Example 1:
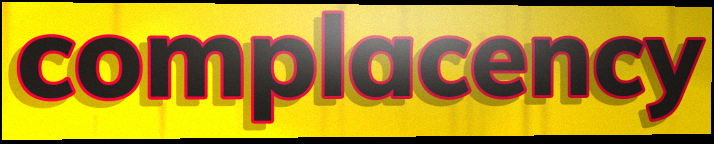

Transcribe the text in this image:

complacency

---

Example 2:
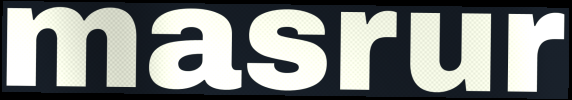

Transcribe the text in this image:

masrur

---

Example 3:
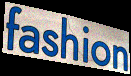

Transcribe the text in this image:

fashion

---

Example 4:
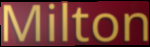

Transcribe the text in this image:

Milton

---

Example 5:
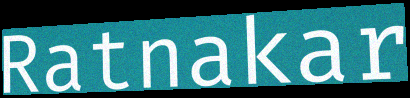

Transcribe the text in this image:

Ratnakar